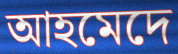
আহমেদে